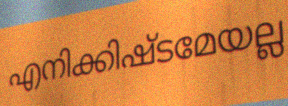
എനിക്കിഷ്ടമേയല്ല